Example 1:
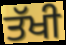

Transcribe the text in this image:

ਤੱਖੀ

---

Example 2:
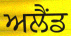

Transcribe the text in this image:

ਅਲੈਂਡ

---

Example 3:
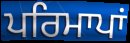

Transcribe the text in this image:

ਪਰਿਮਾਪਾਂ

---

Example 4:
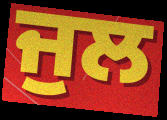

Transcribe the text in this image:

ਜੁਲ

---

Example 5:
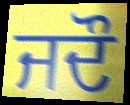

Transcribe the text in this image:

ਜਦੌ